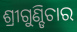
ଶ୍ରୀଗୁଣ୍ଡିଚାର